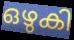
ഒഴുകി